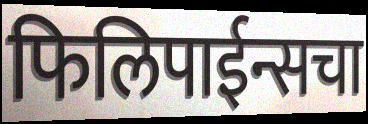
फिलिपाईन्सचा